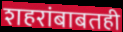
शहरांबाबतही